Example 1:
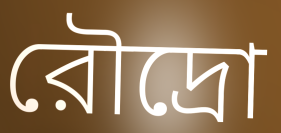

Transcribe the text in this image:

রৌদ্রো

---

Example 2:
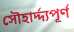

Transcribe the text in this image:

সৌহার্দ্দ্যপূর্ণ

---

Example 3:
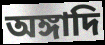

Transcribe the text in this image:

অঙ্গাদি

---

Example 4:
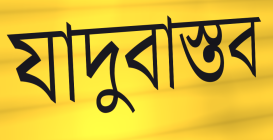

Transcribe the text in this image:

যাদুবাস্তব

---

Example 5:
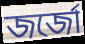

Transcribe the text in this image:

জর্জো